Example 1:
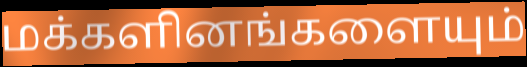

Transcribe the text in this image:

மக்களினங்களையும்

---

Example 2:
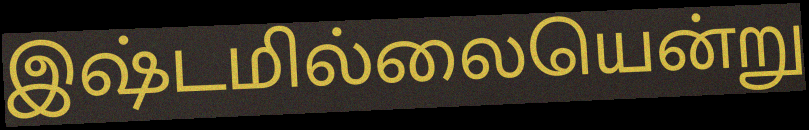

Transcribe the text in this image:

இஷ்டமில்லையென்று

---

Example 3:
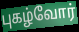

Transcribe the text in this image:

புகழ்வோர்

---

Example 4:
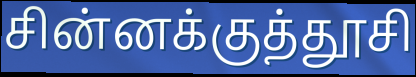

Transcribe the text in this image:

சின்னக்குத்தூசி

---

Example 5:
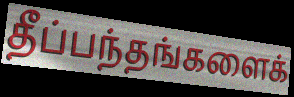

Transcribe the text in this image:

தீப்பந்தங்களைக்